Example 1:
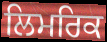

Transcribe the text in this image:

ਲਿਮਰਿਕ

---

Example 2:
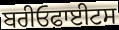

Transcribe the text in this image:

ਬਰੀਓਫਾਈਟਸ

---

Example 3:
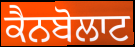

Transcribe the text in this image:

ਕੈਨਬੋਲਾਟ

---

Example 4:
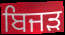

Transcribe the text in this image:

ਬਿਜੜ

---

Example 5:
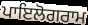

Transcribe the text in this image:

ਪਾਇਲੋਗਰਾਮ